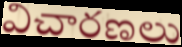
విచారణలు